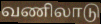
வணிலாடு